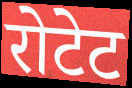
रोटेट